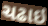
ચઢાઇ